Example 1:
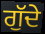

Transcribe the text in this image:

ਗੁੱਦੇ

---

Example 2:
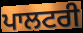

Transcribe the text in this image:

ਪਾਲਟਰੀ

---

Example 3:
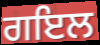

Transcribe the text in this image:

ਗਇਲ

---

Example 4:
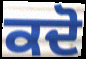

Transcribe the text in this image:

ਕਦੋ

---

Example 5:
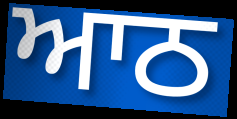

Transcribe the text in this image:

ਆਠ